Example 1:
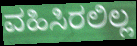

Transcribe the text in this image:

ವಹಿಸಿರಲಿಲ್ಲ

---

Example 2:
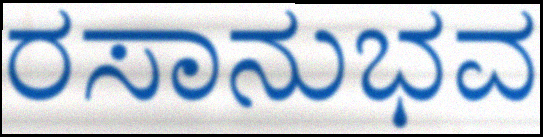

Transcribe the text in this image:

ರಸಾನುಭವ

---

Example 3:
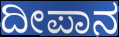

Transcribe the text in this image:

ದೀಪಾನ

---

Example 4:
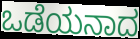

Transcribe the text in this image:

ಒಡೆಯನಾದ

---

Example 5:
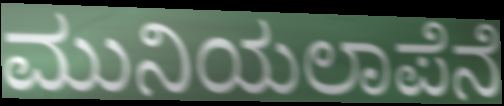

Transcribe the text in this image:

ಮುನಿಯಲಾಪೆನೆ